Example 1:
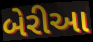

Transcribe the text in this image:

બેરીઆ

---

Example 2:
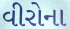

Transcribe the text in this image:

વીરોના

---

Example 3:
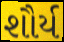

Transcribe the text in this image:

શૌર્ય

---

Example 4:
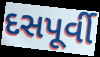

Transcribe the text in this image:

દસપૂર્વી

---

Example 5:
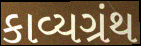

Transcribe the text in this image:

કાવ્યગ્રંથ